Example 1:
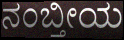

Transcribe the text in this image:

ನಂಬ್ತೀಯ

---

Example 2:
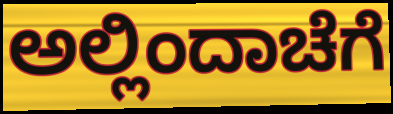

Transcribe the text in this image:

ಅಲ್ಲಿಂದಾಚೆಗೆ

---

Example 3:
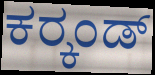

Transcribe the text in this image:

ಕರ್‍ಕಂಡ್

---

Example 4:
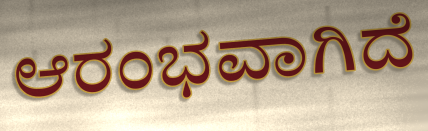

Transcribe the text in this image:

ಆರಂಭವಾಗಿದೆ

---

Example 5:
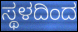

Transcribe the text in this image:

ಸ್ಥಳದಿಂದ